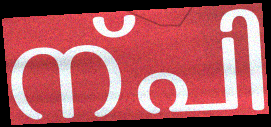
ന്പി